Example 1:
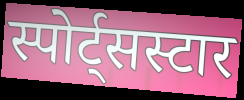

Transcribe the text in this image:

स्पोर्ट्सस्टार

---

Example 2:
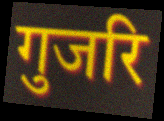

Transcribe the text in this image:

गुजरि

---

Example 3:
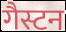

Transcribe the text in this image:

गैस्टन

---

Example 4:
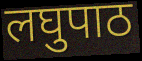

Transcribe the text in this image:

लघुपाठ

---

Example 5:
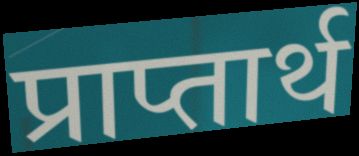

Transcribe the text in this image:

प्राप्तार्थ